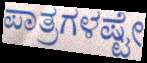
ಪಾತ್ರಗಳಷ್ಟೇ